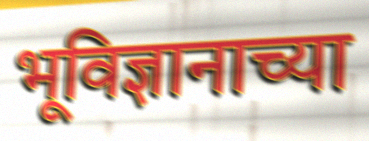
भूविज्ञानाच्या